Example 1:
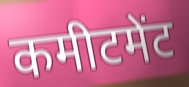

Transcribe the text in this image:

कमीटमेंट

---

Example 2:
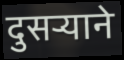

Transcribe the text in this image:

दुसऱ्याने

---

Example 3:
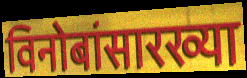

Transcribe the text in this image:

विनोबांसारख्या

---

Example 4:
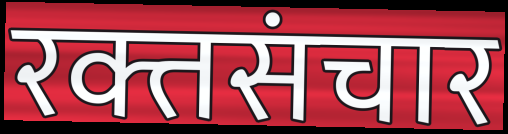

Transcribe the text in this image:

रक्तसंचार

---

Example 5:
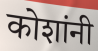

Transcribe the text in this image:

कोशांनी